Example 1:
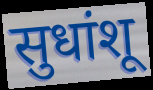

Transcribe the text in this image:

सुधांशू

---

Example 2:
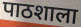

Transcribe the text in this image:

पाठशाला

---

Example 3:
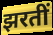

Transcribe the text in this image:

झरतीं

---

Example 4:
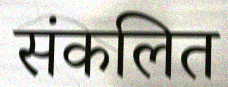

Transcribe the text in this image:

संकलित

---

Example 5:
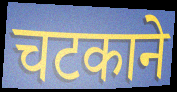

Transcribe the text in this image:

चटकाने